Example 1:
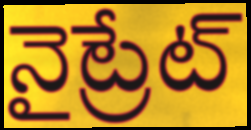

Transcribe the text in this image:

నైట్రేట్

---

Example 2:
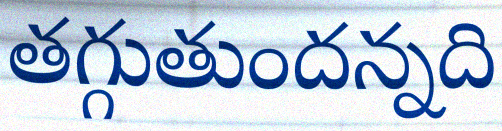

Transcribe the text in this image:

తగ్గుతుందన్నది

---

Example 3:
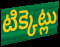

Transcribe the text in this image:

టిక్కెట్లు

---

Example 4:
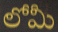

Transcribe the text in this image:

లోమీ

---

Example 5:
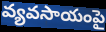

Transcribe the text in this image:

వ్యవసాయంపై